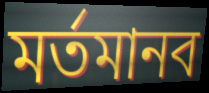
মর্তমানব